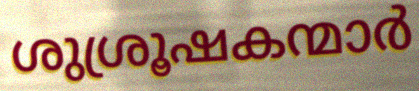
ശുശ്രൂഷകന്മാർ